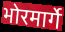
भोरमार्गे